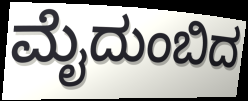
ಮೈದುಂಬಿದ